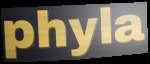
phyla